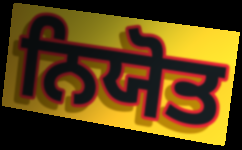
ਨਿਯੋਤ